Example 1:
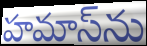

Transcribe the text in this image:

హమాస్‌ను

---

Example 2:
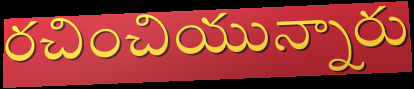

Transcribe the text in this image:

రచించియున్నారు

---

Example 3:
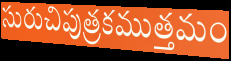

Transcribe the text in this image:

సురుచిపుత్రకముత్తమం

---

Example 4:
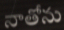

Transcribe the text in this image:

నాతోను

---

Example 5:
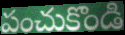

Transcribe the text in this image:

పంచుకొండి